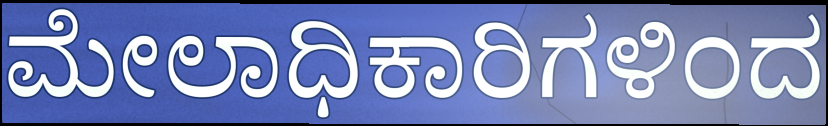
ಮೇಲಾಧಿಕಾರಿಗಳಿಂದ